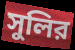
সুলির